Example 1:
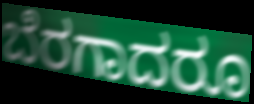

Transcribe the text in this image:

ಬೆರಗಾದರೂ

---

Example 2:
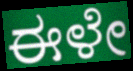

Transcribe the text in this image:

ಈಳೇ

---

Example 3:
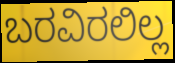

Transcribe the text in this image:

ಬರವಿರಲಿಲ್ಲ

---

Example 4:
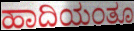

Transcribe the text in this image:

ಹಾದಿಯಂತೂ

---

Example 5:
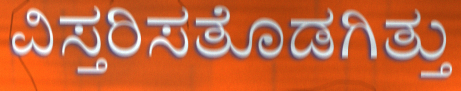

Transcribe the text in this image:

ವಿಸ್ತರಿಸತೊಡಗಿತ್ತು